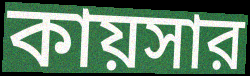
কায়সার